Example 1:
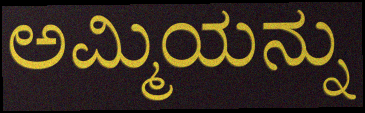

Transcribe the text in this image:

ಅಮ್ಮಿಯನ್ನು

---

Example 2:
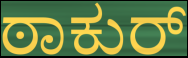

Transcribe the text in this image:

ಠಾಕುರ್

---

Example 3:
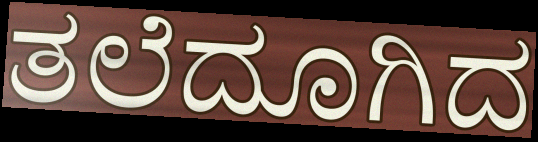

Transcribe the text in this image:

ತಲೆದೂಗಿದ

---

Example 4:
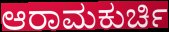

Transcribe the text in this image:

ಆರಾಮಕುರ್ಚಿ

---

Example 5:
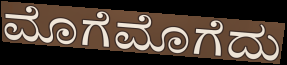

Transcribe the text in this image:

ಮೊಗೆಮೊಗೆದು